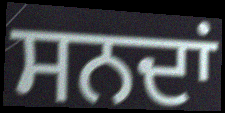
ਸਨਦਾਂ